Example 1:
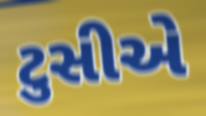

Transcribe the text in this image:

ટુસીએ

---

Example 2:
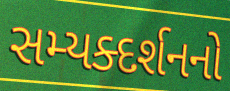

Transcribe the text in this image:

સમ્યક્દર્શનનો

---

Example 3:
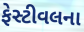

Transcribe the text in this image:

ફેસ્ટીવલના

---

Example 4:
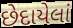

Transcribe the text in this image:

છેદાયેલાં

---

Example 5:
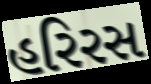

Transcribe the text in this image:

હરિરસ